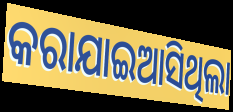
କରାଯାଇଆସିଥିଲା